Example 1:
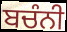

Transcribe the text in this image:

ਬਚੰਨੀ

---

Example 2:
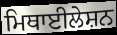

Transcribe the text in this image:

ਮਿਥਾਈਲੇਸ਼ਨ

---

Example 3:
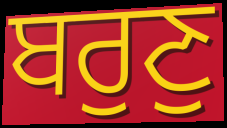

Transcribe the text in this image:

ਬਰੁਣੁ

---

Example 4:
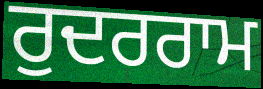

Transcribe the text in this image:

ਰੁਦਰਰਾਮ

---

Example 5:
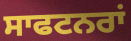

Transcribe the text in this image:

ਸਾਫਟਨਰਾਂ